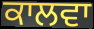
ਕਾਲਵਾ